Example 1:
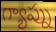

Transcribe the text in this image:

గ్యాప్ను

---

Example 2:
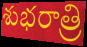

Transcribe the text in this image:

శుభరాత్రి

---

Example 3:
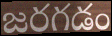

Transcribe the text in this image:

జరగడం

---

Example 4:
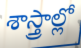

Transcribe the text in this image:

శాస్త్రాల్లో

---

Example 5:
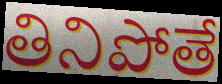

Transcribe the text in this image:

తినిపోతే